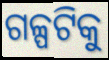
ଗଳ୍ପଟିକୁ